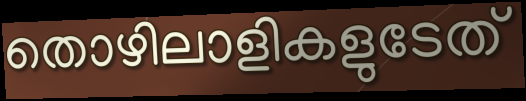
തൊഴിലാളികളുടേത്